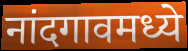
नांदगावमध्ये